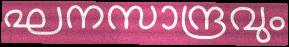
ഘനസാന്ദ്രവും